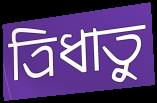
ত্রিধাতু